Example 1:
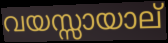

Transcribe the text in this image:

വയസ്സായാല്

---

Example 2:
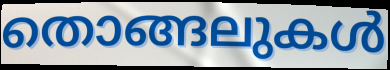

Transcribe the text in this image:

തൊങ്ങലുകൾ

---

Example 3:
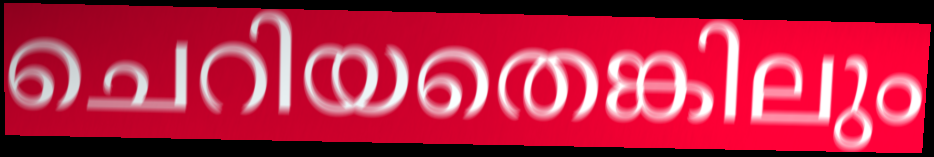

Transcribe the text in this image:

ചെറിയതെങ്കിലും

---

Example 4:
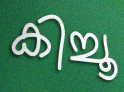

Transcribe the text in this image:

കിച്ചൂ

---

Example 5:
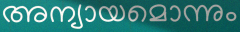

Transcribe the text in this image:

അന്യായമൊന്നും